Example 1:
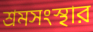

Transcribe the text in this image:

শ্রমসংস্থার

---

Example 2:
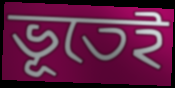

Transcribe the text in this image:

ভূতেই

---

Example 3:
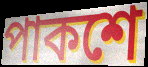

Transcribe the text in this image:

পাকশে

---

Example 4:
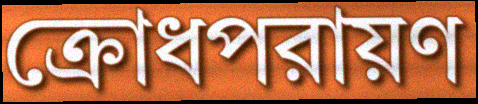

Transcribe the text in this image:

ক্রোধপরায়ণ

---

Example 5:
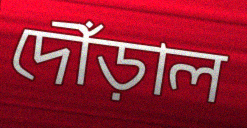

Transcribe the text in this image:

দৌঁড়াল